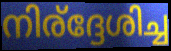
നിര്ദ്ദേശിച്ച